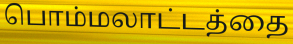
பொம்மலாட்டத்தை